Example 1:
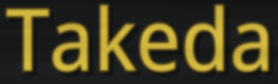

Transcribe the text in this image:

Takeda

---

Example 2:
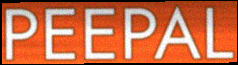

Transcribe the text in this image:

PEEPAL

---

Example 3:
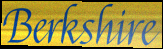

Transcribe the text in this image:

Berkshire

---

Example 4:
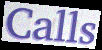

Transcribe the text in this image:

Calls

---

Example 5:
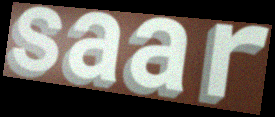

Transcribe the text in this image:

saar